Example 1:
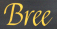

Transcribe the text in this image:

Bree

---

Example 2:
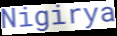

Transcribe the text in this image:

Nigirya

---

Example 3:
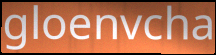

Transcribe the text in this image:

gloenvcha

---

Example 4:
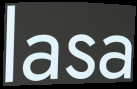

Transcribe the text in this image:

lasa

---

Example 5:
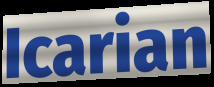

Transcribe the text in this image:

Icarian